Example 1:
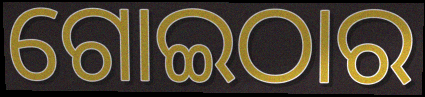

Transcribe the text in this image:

ଗୋଇଠାର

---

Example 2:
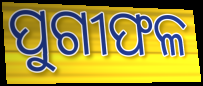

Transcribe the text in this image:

ପୁଗୀଫଳ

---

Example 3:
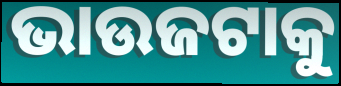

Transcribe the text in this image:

ଭାଉଜଟାକୁ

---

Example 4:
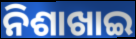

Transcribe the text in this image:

ନିଶାଖାଇ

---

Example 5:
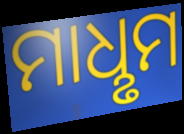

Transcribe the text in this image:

ମାଧୢମ